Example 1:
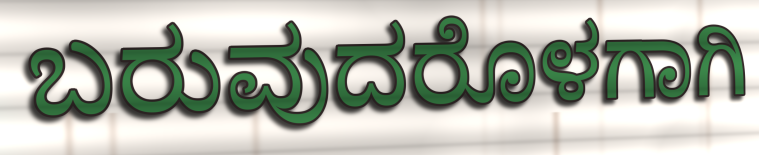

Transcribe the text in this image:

ಬರುವುದರೊಳಗಾಗಿ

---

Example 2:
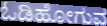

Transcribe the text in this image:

ಓಡಿಹೋಗುವ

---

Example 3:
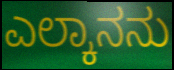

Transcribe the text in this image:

ಎಲ್ಕಾನನು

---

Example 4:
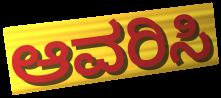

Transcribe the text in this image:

ಆವರಿಸಿ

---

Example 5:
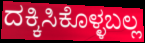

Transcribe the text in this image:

ದಕ್ಕಿಸಿಕೊಳ್ಳಬಲ್ಲ